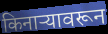
किनाऱ्यावरून